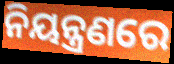
ନିୟନ୍ତ୍ରଣରେ